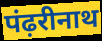
पंढ़रीनाथ